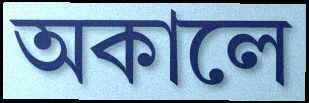
অকালে